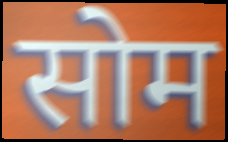
सोम